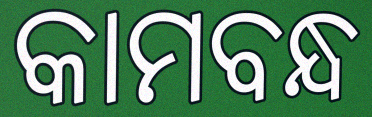
କାମବନ୍ଧ